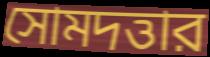
সোমদত্তার